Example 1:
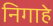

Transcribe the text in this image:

निगाहे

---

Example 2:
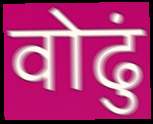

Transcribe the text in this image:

वोढुं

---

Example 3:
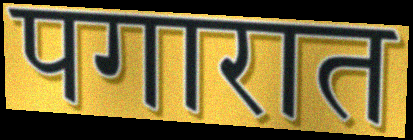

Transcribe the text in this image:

पगारात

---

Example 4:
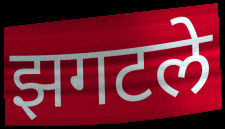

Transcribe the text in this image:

झगटले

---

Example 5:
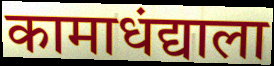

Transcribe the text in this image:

कामाधंद्याला